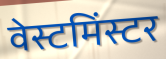
वेस्‍टमिंस्‍टर